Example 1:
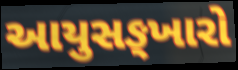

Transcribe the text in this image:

આયુસઙ્ખારો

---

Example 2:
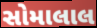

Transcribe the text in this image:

સોમાલાલ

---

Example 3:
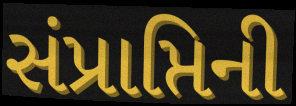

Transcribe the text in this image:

સંપ્રાપ્તિની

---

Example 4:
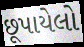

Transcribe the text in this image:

છૂપાયેલો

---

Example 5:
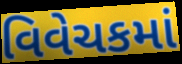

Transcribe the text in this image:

વિવેચકમાં